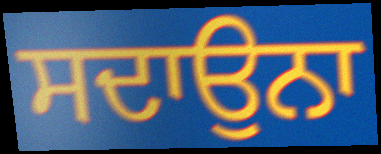
ਸਦਾਉਨਾ